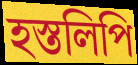
হস্তলিপি